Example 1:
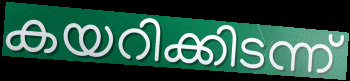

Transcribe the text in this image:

കയറിക്കിടന്ന്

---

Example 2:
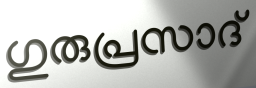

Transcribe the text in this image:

ഗുരുപ്രസാദ്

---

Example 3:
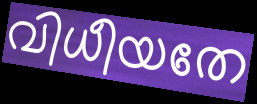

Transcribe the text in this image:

വിധീയതേ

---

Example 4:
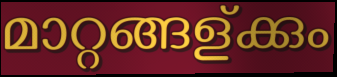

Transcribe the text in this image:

മാറ്റങ്ങള്ക്കും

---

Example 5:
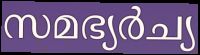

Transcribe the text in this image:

സമഭ്യർച്യ